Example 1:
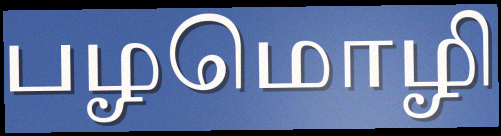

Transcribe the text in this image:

பழமொழி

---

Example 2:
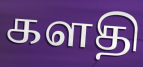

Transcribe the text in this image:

களதி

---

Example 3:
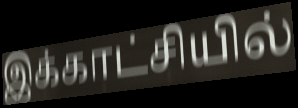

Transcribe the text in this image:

இக்காட்சியில்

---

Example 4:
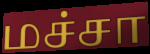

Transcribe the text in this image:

மச்சா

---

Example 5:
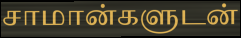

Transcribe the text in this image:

சாமான்களுடன்